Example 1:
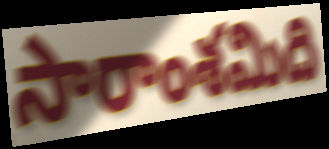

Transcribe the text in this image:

సారాంశమిది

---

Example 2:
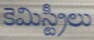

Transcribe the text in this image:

కెమిస్ట్రీలు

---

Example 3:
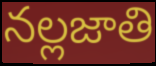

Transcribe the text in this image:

నల్లజాతి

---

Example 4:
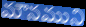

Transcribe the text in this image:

మౌనముని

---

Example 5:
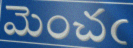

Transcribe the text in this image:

మెంచఁ